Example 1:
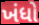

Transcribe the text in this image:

ખંધો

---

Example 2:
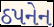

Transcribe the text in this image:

ઠપનેન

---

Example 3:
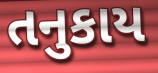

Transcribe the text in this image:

તનુકાય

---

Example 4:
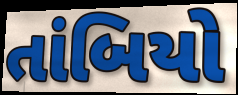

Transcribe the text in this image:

તાંબિયો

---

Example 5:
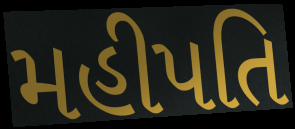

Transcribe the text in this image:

મહીપતિ